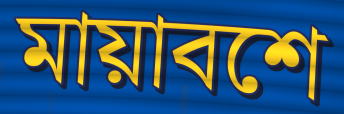
মায়াবশে